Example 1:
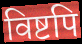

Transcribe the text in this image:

विष्टपि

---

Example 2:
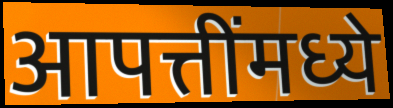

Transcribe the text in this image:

आपत्तींमध्ये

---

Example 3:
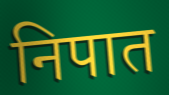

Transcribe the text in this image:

निपात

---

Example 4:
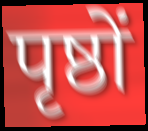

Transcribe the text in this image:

पृष्ठों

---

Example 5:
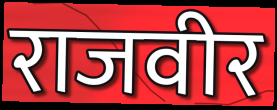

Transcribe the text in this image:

राजवीर